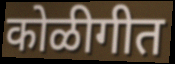
कोळीगीत